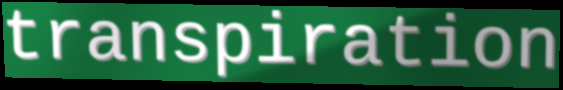
transpiration